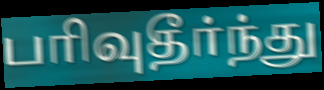
பரிவுதீர்ந்து